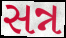
સન્ન